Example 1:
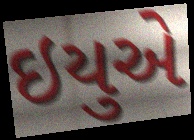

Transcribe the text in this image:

ઇયુએ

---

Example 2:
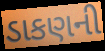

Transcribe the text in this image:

ડાકણની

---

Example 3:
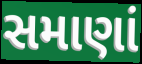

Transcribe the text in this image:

સમાણાં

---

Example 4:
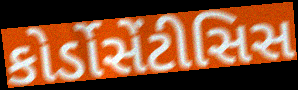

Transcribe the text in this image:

કોર્ડોસેંટીસિસ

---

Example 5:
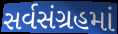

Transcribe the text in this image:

સર્વસંગ્રહમાં